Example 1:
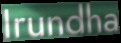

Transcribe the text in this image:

Irundha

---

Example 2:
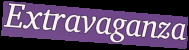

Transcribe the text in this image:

Extravaganza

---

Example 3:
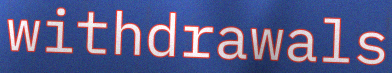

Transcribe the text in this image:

withdrawals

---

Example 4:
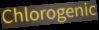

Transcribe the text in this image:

Chlorogenic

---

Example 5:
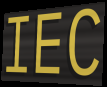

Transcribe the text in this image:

IEC